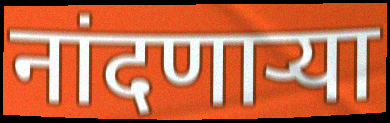
नांदणार्‍या